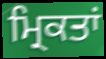
ਮ੍ਰਿਕਤਾਂ